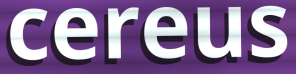
cereus